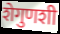
शेगुणशी